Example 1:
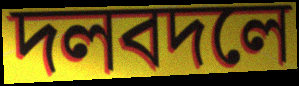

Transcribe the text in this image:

দলবদলে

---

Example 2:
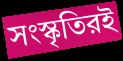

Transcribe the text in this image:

সংস্কৃতিরই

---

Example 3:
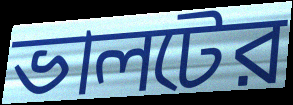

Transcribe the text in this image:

ভালটের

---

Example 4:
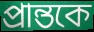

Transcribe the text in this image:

প্রান্তকে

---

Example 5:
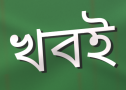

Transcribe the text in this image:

খবই